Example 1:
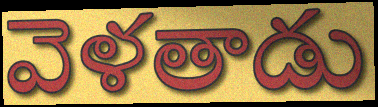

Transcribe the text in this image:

వెళతాడు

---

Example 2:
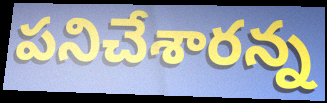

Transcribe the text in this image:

పనిచేశారన్న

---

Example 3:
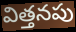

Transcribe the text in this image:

విత్తనపు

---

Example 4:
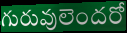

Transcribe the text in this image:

గురువులెందరో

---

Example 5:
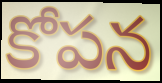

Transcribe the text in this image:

కోపన